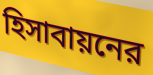
হিসাবায়নের